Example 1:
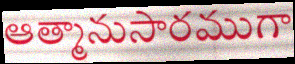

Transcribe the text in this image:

ఆత్మానుసారముగా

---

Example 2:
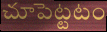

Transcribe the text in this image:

చూపెట్టటం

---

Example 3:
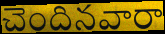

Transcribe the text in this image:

చెందినవారా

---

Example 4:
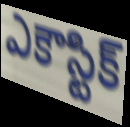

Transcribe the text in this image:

ఎకౌస్టిక్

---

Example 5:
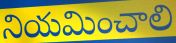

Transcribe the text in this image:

నియమించాలి